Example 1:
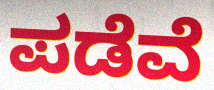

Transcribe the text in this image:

ಪಡೆವೆ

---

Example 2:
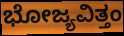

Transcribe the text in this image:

ಭೋಜ್ಯವಿತ್ತಂ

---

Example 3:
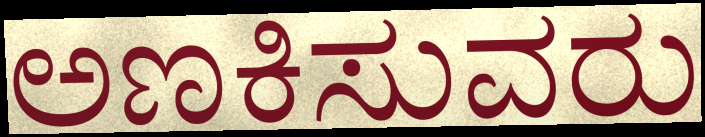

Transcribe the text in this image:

ಅಣಕಿಸುವರು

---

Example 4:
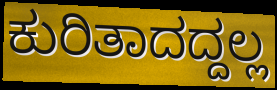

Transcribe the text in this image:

ಕುರಿತಾದದ್ದಲ್ಲ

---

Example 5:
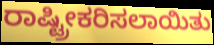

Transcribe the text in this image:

ರಾಷ್ಟ್ರೀಕರಿಸಲಾಯಿತು